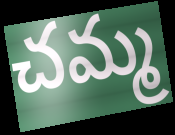
చమ్మ